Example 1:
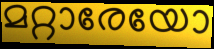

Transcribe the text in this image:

മറ്റാരേയോ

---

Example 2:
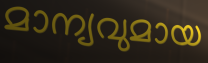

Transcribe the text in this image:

മാന്യവുമായ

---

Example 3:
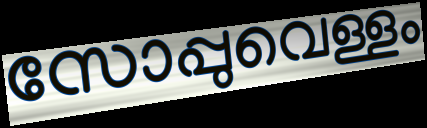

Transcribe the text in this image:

സോപ്പുവെള്ളം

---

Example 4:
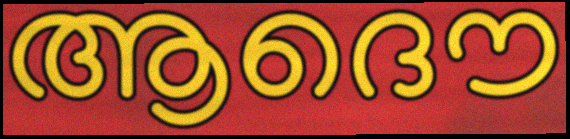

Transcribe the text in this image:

ആദൌ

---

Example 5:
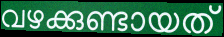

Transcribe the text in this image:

വഴക്കുണ്ടായത്